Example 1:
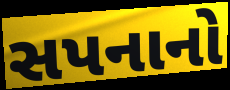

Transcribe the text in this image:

સપનાનો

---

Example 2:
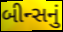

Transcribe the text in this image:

બીન્સનું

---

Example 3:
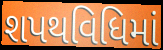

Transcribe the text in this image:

શપથવિધિમાં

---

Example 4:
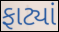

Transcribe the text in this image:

ફાટ્યાં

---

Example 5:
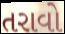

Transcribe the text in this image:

તરાવો